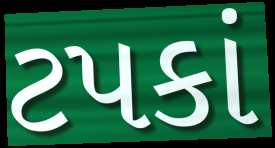
ટપકાં